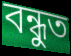
বন্ধুত